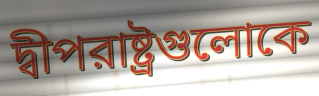
দ্বীপরাষ্ট্রগুলোকে